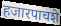
हजारपाचशे